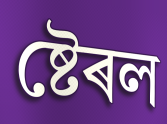
ষ্টেৰল